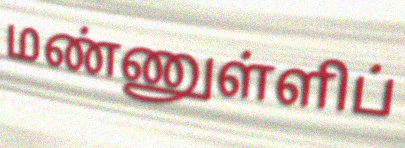
மண்ணுள்ளிப்